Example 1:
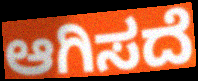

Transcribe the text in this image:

ಆಗಿಸದೆ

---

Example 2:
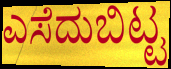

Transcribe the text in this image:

ಎಸೆದುಬಿಟ್ಟ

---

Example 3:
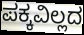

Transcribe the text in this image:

ಪಕ್ಕವಿಲ್ಲದ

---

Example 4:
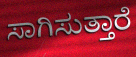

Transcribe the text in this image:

ಸಾಗಿಸುತ್ತಾರೆ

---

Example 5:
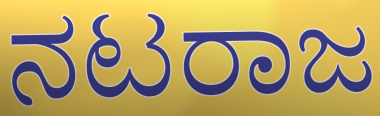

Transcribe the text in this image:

ನಟರಾಜ